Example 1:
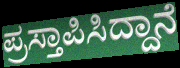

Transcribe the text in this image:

ಪ್ರಸ್ತಾಪಿಸಿದ್ದಾನೆ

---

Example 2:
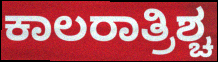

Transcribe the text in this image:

ಕಾಲರಾತ್ರಿಶ್ಚ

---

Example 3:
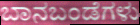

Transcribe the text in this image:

ಬಾನಬಂಡೆಗಳು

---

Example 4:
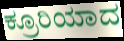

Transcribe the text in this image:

ಕ್ರೂರಿಯಾದ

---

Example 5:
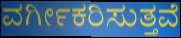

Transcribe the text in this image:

ವರ್ಗೀಕರಿಸುತ್ತವೆ